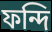
ফন্দি